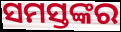
ସମସ୍ତଙ୍କର